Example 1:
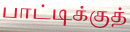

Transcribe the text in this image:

பாட்டிக்குத்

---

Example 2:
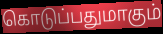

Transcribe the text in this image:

கொடுப்பதுமாகும்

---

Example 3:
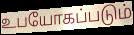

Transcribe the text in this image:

உபயோகப்படும்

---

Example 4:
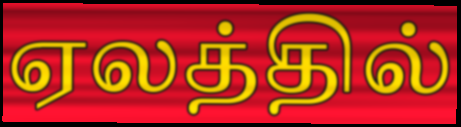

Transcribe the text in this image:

ஏலத்தில்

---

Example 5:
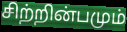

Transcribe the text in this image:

சிற்றின்பமும்